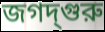
জগদ্‌গুরু